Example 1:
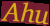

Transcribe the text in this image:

Ahu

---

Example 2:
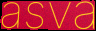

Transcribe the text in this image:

asva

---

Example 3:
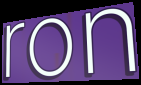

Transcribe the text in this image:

ron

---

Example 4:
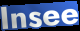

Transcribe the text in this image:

Insee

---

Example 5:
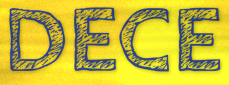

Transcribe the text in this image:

DECE